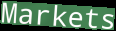
Markets